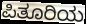
ಪಿತೂರಿಯ